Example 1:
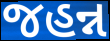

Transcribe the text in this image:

જહન્ન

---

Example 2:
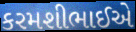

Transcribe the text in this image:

કરમશીભાઈએ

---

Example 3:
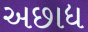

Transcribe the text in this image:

અછાદ્ય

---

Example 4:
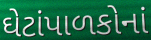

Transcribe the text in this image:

ઘેટાંપાળકોનાં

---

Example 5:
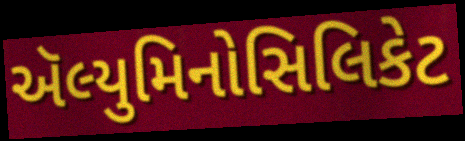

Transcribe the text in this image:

ઍલ્યુમિનોસિલિકેટ